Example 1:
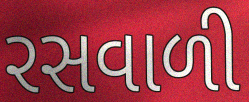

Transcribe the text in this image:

રસવાળી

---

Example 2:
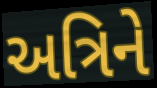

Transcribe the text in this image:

અત્રિને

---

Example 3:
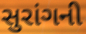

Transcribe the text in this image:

સુરાંગની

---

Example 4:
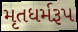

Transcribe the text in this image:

મૃતધર્મરૂપ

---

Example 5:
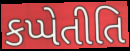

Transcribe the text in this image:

કપ્પેતીતિ